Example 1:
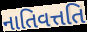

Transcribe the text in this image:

નાતિવત્તતિ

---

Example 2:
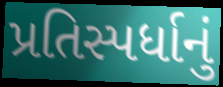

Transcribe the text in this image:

પ્રતિસ્પર્ધાનું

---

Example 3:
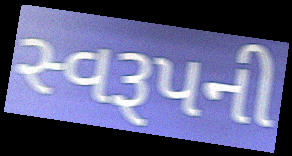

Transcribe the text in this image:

સ્વરૂપની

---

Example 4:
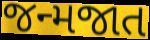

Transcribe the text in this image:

જન્મજાત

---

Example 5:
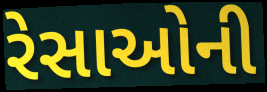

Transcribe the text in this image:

રેસાઓની